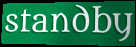
standby